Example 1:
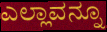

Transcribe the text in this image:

ಎಲ್ಲಾವನ್ನೂ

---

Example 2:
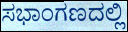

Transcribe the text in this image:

ಸಭಾಂಗಣದಲ್ಲಿ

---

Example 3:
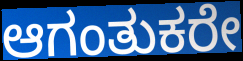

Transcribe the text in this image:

ಆಗಂತುಕರೇ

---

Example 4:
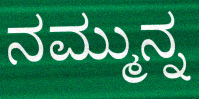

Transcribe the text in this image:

ನಮ್ಮುನ್ನ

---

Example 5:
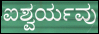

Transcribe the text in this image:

ಐಶ್ವರ್ಯವು